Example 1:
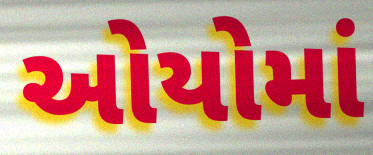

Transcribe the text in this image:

ઓયોમાં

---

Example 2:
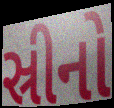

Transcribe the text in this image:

સ્રીનો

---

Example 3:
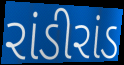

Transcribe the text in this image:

રાંડીરાંડ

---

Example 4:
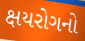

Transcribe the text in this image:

ક્ષયરોગનો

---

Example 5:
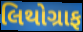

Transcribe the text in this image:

લિથોગ્રાફ